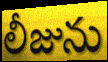
లీజును